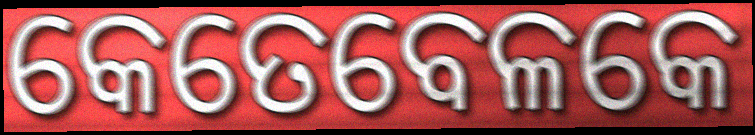
କେତେବେଳକେ